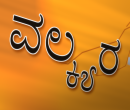
ವಲ್ಕ್ಯರ